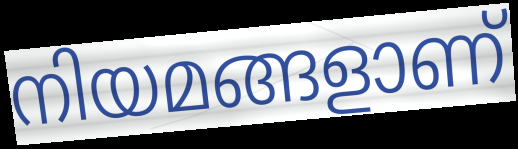
നിയമങ്ങളാണ്